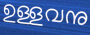
ഉള്ളവനു